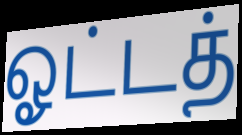
ஓட்டத்